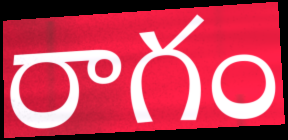
రాగం